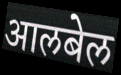
आलबेल